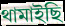
থামাইছি